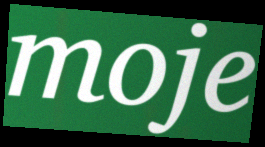
moje